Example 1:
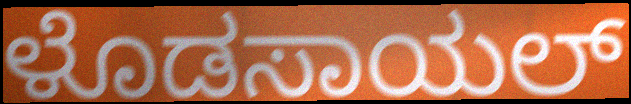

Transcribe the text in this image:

ಳೊಡಸಾಯಲ್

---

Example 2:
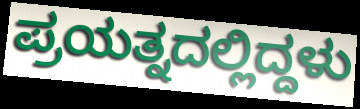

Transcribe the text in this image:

ಪ್ರಯತ್ನದಲ್ಲಿದ್ದಳು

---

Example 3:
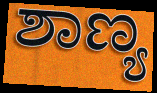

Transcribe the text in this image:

ಶಾಣ್ಯ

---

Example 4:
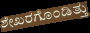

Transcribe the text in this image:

ಶೇಖರಗೊಂಡಿತ್ತು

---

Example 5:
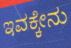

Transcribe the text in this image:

ಇವಕ್ಕೇನು